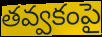
తవ్వకంపై